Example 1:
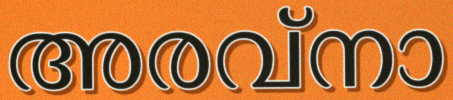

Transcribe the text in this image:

അരവ്നാ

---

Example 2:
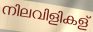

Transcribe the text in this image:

നിലവിളികള്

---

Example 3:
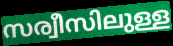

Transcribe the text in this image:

സര്വീസിലുള്ള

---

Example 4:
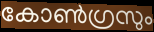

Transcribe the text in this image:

കോൺഗ്രസും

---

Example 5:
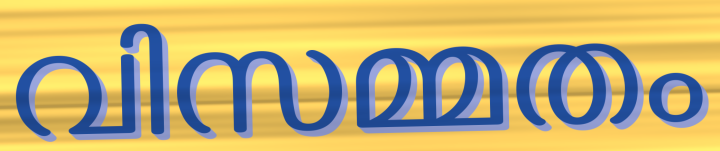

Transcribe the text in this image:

വിസമ്മതം